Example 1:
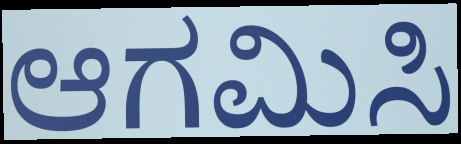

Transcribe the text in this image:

ಆಗಮಿಸಿ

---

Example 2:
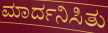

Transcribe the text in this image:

ಮಾರ್ದನಿಸಿತು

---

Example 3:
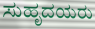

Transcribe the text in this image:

ಸುಹೃದಯರು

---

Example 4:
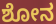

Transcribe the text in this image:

ಶೋನ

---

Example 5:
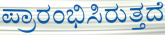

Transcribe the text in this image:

ಪ್ರಾರಂಭಿಸಿರುತ್ತದೆ